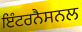
ਇੰਟਰਨੈਸਨਲ